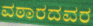
ವಠಾರದವರ